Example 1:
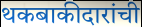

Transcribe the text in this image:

थकबाकीदारांची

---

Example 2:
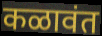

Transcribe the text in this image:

कळावंत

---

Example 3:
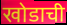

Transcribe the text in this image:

खोडाची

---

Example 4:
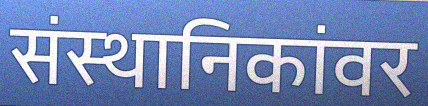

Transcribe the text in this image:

संस्थानिकांवर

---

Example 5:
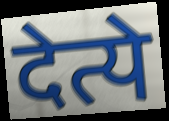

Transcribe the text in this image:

देत्ये